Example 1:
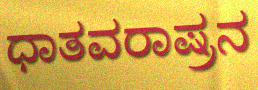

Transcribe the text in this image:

ಧಾತವರಾಷ್ರನ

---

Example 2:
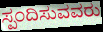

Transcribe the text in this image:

ಸ್ಪಂದಿಸುವವರು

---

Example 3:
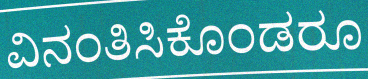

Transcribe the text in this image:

ವಿನಂತಿಸಿಕೊಂಡರೂ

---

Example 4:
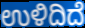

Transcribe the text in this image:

ಉಳಿದಿದೆ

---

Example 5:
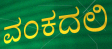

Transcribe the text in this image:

ವಂಕದಲಿ